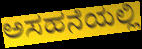
ಅಸಹನೆಯಲ್ಲಿ